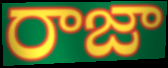
రాజా